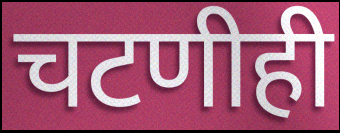
चटणीही